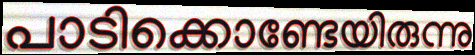
പാടിക്കൊണ്ടേയിരുന്നു